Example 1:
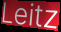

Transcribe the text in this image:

Leitz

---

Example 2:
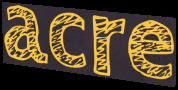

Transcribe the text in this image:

acre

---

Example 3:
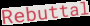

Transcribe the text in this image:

Rebuttal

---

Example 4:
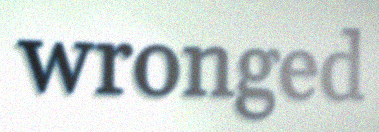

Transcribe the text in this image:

wronged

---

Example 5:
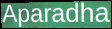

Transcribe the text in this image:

Aparadha